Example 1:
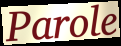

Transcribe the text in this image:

Parole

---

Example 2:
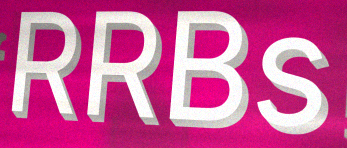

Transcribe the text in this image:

RRBs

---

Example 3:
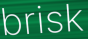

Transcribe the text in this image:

brisk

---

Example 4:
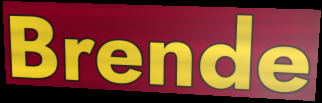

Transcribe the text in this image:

Brende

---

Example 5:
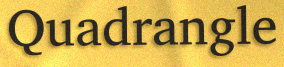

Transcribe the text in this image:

Quadrangle